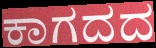
ಕಾಗದದ